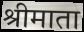
श्रीमाता